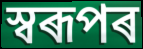
স্বৰূপৰ